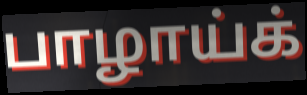
பாழாய்க்